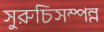
সুরুচিসম্পন্ন